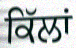
ਕਿੱਲਾਂ